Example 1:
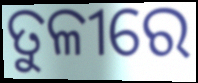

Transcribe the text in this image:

ତୁଳୀରେ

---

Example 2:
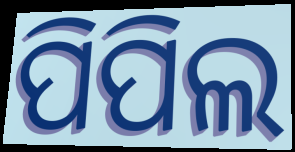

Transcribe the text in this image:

ପିପିଲ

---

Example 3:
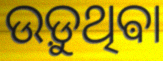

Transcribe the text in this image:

ଉଡ଼ୁଥିଵା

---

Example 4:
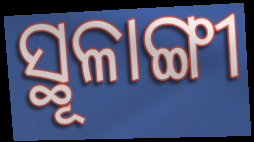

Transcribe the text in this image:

ସ୍ଥୂଳାଙ୍ଗୀ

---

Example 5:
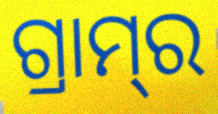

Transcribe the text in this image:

ଗ୍ରାମ୍‌ର